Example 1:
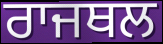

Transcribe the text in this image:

ਰਾਜਥਲ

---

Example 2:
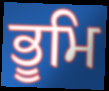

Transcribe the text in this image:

ਭੂਮਿ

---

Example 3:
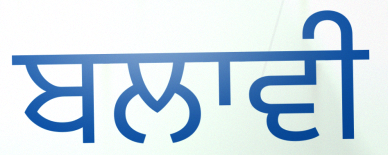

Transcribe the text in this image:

ਬਲਾਵੀ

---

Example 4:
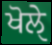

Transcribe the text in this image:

ਖੋਲੑੇ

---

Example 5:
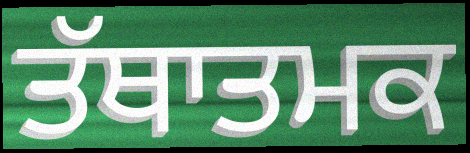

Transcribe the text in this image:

ਤੱਥਾਤਮਕ